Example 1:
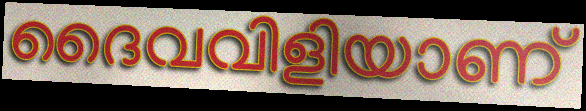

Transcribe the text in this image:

ദൈവവിളിയാണ്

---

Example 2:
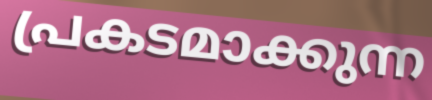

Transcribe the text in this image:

പ്രകടമാക്കുന്ന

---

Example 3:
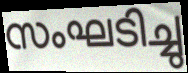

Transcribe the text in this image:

സംഘടിച്ചു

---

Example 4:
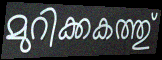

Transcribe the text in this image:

മുറിക്കകത്തു്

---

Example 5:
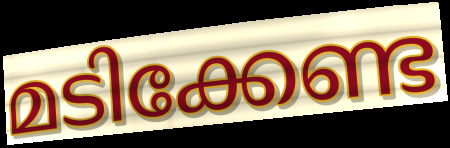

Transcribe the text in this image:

മടിക്കേണ്ട